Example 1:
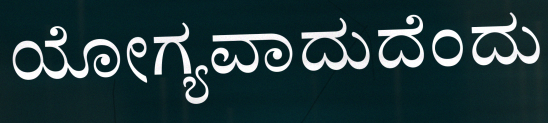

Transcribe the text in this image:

ಯೋಗ್ಯವಾದುದೆಂದು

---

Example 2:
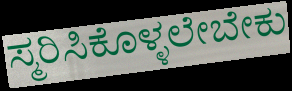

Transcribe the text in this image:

ಸ್ಮರಿಸಿಕೊಳ್ಳಲೇಬೇಕು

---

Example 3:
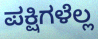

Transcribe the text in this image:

ಪಕ್ಷಿಗಳೆಲ್ಲ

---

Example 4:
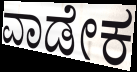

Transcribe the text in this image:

ವಾಡೇಕ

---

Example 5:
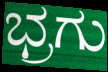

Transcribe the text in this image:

ಭ್ರಗು